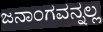
ಜನಾಂಗವನ್ನಲ್ಲ